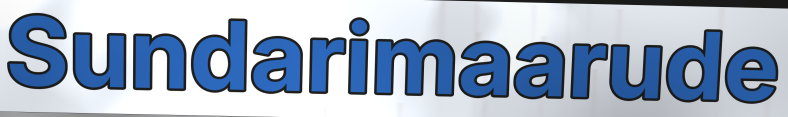
Sundarimaarude